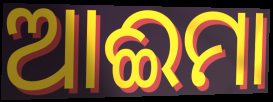
ଆଈମା